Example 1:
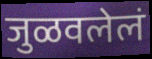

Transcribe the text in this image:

जुळवलेलं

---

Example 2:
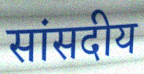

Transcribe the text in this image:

सांसदीय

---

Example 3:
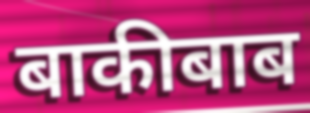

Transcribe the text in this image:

बाकीबाब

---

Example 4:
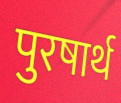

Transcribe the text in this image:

पुरषार्थ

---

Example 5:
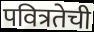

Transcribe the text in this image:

पवित्रतेची